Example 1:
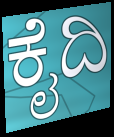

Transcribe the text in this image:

ಕೈದಿ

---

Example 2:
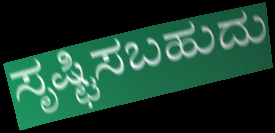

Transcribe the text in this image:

ಸೃಷ್ಟಿಸಬಹುದು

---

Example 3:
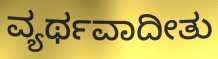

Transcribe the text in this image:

ವ್ಯರ್ಥವಾದೀತು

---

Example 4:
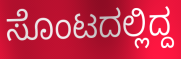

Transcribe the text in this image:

ಸೊಂಟದಲ್ಲಿದ್ದ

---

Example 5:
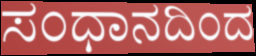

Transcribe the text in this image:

ಸಂಧಾನದಿಂದ